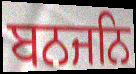
ਬਨਜਨਿ